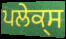
ਪਲੇਕ੍ਸ